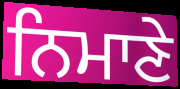
ਨਿਮਾਣੇ